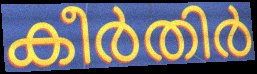
കീർതിർ